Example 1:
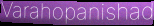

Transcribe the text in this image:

Varahopanishad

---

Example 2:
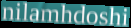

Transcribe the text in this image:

nilamhdoshi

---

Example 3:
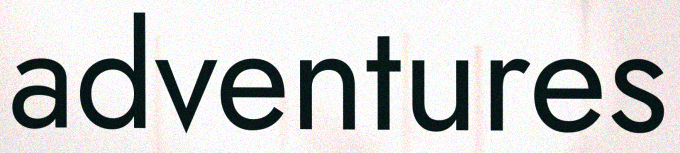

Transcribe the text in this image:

adventures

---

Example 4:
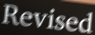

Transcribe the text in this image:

Revised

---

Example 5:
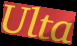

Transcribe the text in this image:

Ulta